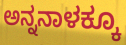
ಅನ್ನನಾಳಕ್ಕೂ